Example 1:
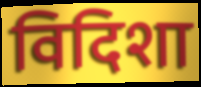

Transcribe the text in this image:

विदिशा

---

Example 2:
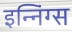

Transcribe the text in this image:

इन्निंग्स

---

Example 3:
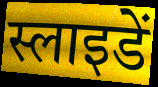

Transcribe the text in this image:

स्लाइडें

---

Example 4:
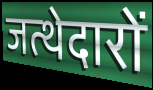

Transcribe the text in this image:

जत्थेदारों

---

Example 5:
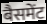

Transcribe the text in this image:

बैसमेंट